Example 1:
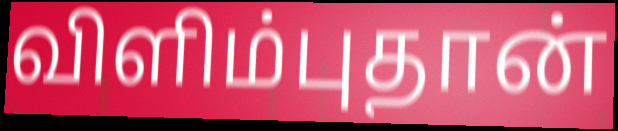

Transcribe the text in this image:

விளிம்புதான்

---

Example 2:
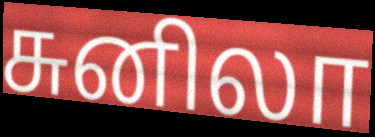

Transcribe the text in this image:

சுனிலா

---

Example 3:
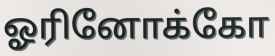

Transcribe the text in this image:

ஓரினோக்கோ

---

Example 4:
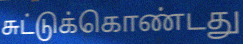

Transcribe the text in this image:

சுட்டுக்கொண்டது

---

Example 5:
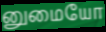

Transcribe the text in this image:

னுமையோ